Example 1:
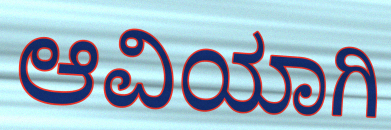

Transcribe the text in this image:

ಆವಿಯಾಗಿ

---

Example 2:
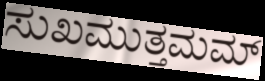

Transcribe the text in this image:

ಸುಖಮುತ್ತಮಮ್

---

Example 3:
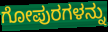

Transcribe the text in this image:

ಗೋಪುರಗಳನ್ನು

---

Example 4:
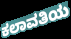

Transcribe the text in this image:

ಕಲಾವತಿಯ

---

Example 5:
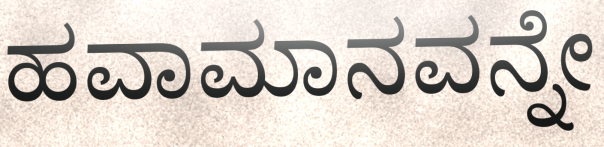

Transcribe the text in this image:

ಹವಾಮಾನವನ್ನೇ